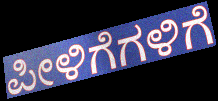
ಪೀಳಿಗೆಗಳಿಗೆ